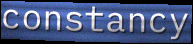
constancy